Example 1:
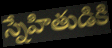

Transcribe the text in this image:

స్నేహితుడికి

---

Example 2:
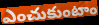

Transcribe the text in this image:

ఎంచుకుంటాం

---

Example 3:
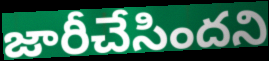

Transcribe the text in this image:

జారీచేసిందని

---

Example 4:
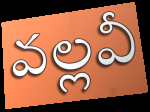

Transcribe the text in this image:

వల్లవీ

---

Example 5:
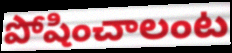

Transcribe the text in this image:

పోషించాలంట